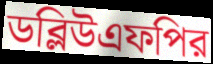
ডব্লিউএফপির